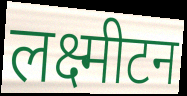
लक्ष्मीटन